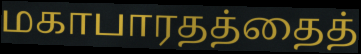
மகாபாரதத்தைத்